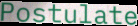
Postulate